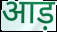
आड़